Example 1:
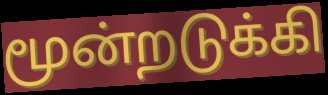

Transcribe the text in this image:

மூன்றடுக்கி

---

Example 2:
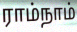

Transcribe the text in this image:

ராம்நாம்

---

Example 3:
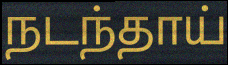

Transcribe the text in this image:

நடந்தாய்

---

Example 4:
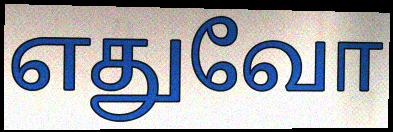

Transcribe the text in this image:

எதுவோ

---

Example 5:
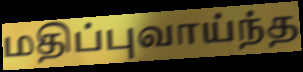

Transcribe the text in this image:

மதிப்புவாய்ந்த